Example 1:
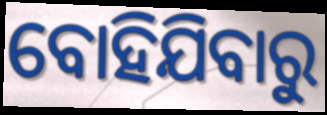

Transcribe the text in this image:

ବୋହିଯିବାରୁ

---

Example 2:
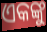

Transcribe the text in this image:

ଏକଙ୍କୁ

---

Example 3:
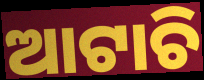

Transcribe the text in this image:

ଆଟାଚି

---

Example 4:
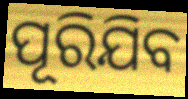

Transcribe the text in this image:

ପୂରିଯିବ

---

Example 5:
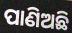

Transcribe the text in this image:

ପାଣିଅଛି